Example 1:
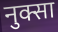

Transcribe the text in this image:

नुक्सा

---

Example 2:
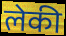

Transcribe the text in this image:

लेकी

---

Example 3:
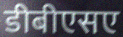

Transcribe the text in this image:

डीबीएसए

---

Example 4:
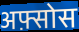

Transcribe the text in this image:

अफ़्सोस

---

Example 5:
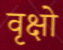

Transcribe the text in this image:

वृक्षो